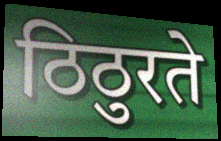
ठिठुरते